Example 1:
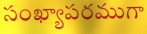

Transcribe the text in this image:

సంఖ్యాపరముగా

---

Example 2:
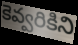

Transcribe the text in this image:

కెవ్వరికిని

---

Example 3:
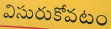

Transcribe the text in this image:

విసురుకోవటం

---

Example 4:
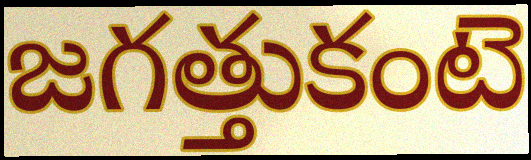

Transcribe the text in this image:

జగత్తుకంటె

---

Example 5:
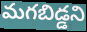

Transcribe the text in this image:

మగబిడ్డని